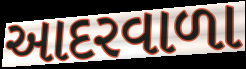
આદરવાળા